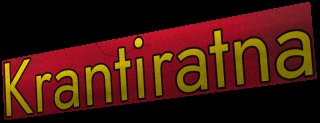
Krantiratna